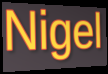
Nigel